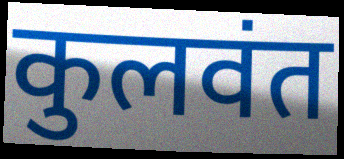
कुलवंत